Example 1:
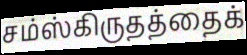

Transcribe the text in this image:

சம்ஸ்கிருதத்தைக்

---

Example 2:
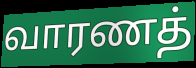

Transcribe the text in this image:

வாரணத்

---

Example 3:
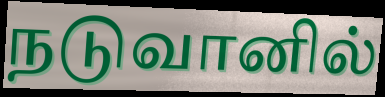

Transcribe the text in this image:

நடுவானில்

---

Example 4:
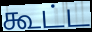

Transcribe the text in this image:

கூட்ட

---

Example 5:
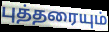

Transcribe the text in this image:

புத்தரையும்